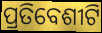
ପ୍ରତିବେଶୀଟି